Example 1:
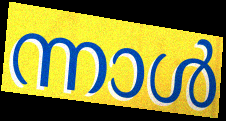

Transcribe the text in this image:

ന്നാൾ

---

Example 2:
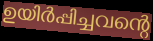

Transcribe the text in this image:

ഉയിർപ്പിച്ചവന്റെ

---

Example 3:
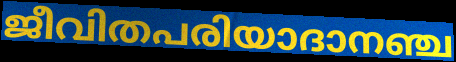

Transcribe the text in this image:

ജീവിതപരിയാദാനഞ്ച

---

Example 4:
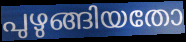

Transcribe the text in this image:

പുഴുങ്ങിയതോ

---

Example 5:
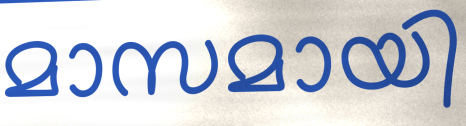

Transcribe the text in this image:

മാസമായി